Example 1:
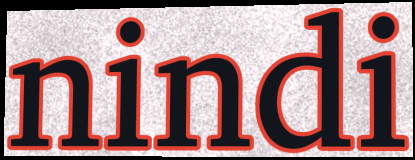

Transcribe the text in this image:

nindi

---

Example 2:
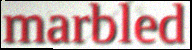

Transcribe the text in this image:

marbled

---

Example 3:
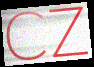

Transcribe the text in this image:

CZ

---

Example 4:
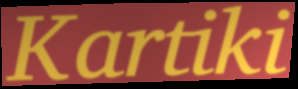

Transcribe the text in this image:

Kartiki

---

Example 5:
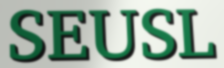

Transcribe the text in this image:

SEUSL